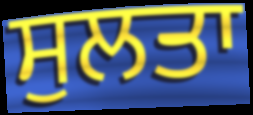
ਸੁਲਤਾ